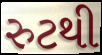
રુટથી